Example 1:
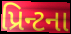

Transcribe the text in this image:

પ્રિન્ટના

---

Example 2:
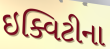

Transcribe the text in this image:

ઇક્વિટીના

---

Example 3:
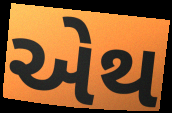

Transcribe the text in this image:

એથ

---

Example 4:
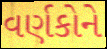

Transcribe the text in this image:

વર્ણકોને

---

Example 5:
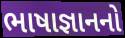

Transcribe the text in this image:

ભાષાજ્ઞાનનો